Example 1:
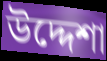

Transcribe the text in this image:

উদ্দেশা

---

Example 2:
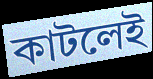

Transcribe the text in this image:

কাটলেই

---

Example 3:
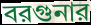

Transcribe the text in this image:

বরগুনার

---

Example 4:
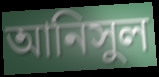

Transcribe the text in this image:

আনিসুল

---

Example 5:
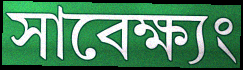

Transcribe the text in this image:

সাবেক্ষ্যং